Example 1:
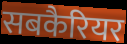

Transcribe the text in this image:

सबकैरियर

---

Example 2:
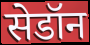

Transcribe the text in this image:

सेडॉन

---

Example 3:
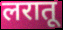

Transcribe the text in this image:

लरातू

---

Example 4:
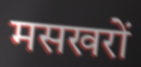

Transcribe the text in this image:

मसखरों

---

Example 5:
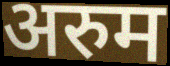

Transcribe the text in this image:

अरुम